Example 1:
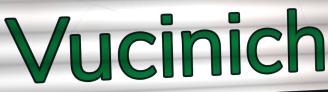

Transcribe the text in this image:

Vucinich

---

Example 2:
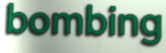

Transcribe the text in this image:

bombing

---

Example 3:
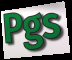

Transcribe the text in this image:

Pgs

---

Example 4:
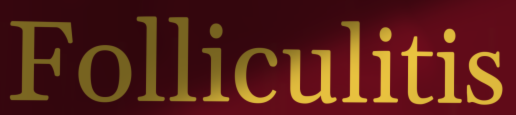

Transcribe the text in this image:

Folliculitis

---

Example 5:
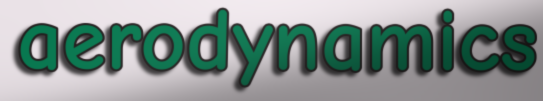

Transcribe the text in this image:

aerodynamics